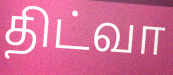
திட்வா